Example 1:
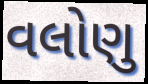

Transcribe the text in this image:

વલોણુ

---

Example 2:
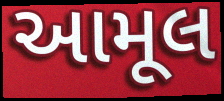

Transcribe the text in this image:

આમૂલ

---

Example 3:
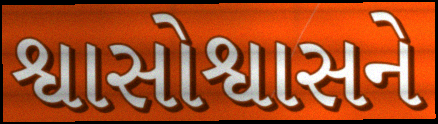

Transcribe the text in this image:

શ્વાસોશ્વાસને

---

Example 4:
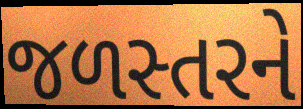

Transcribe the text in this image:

જળસ્તરને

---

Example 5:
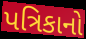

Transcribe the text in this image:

પત્રિકાનો